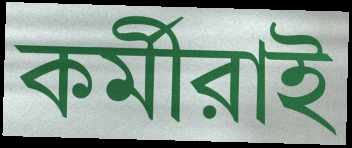
কর্মীরাই